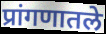
प्रांगणातले